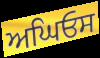
ਅਘਿਓਸ